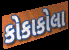
કોકાકોલા